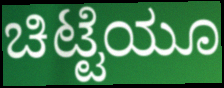
ಚಿಟ್ಟೆಯೂ